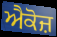
ਐਕੋਜ਼